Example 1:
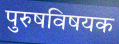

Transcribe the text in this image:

पुरुषविषयक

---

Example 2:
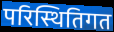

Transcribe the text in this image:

परिस्थितिगत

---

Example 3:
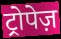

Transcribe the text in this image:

ट्रोपेज़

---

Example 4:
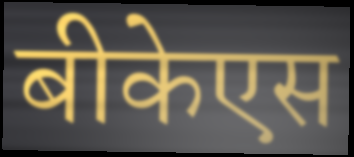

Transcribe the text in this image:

बीकेएस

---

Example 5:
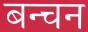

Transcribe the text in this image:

बन्चन